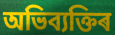
অভিব্যক্তিৰ